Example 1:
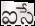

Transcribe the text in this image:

ఐసే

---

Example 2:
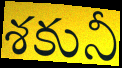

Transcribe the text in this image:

శకునీ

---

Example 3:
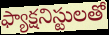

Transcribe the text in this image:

ఫ్యాక్షనిస్టులతో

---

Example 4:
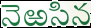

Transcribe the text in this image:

నెఱసిన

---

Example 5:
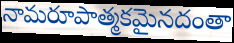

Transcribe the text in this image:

నామరూపాత్మకమైనదంతా